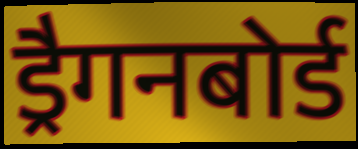
ड्रैगनबोर्ड